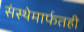
संस्थेमार्फतही